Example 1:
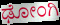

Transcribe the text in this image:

ಢೋಂಗಿ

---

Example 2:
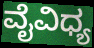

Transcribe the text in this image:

ವೈವಿಧ್ಯ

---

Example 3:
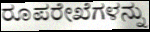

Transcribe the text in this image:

ರೂಪರೇಖೆಗಳನ್ನು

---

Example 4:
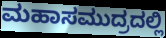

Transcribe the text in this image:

ಮಹಾಸಮುದ್ರದಲ್ಲಿ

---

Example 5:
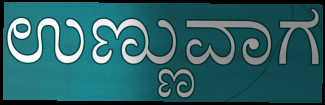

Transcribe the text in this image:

ಉಣ್ಣುವಾಗ